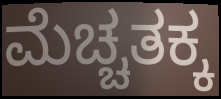
ಮೆಚ್ಚತಕ್ಕ